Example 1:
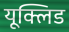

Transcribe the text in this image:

यूक्लिड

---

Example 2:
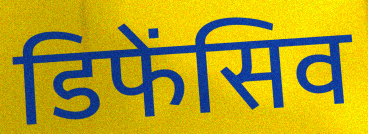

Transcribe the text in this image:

डिफेंसिव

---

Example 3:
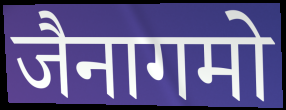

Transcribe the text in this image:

जैनागमो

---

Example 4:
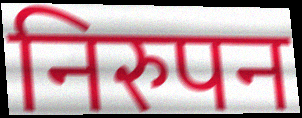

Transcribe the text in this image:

निरुपन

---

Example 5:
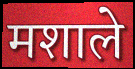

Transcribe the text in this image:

मशाले